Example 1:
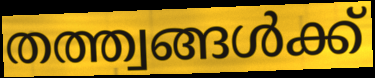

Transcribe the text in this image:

തത്ത്വങ്ങൾക്ക്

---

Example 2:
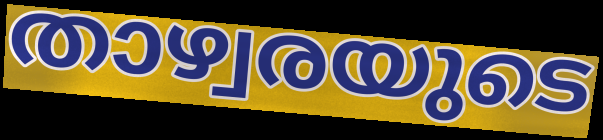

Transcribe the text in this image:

താഴ്വരയുടെ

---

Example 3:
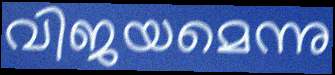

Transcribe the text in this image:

വിജയമെന്നു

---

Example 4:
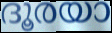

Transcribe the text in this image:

ദൂരയാ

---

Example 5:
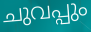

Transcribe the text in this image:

ചുവപ്പും